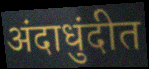
अंदाधुंदीत